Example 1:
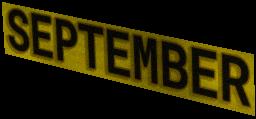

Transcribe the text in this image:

SEPTEMBER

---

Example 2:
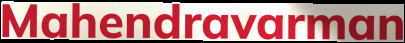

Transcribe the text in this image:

Mahendravarman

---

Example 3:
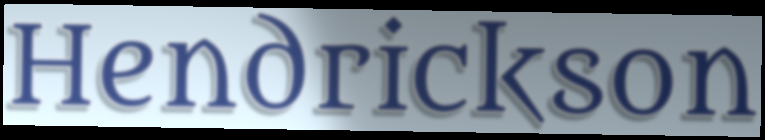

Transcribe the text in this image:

Hendrickson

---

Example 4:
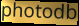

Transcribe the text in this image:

photodb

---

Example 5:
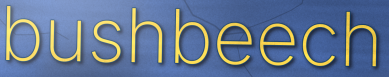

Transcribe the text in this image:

bushbeech